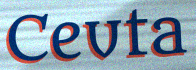
Ceuta